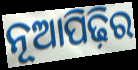
ନୂଆପିଢ଼ିର